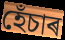
হেঁচাৰ